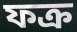
ফক্র